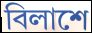
বিলাশে